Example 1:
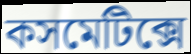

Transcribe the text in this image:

কসমেটিক্সে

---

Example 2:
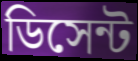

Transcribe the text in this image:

ডিসেন্ট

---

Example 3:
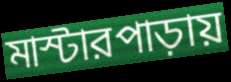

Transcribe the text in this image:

মাস্টারপাড়ায়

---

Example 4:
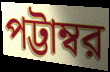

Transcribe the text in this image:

পট্টাম্বর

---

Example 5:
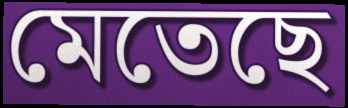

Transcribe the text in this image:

মেতেছে